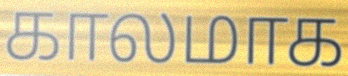
காலமாக